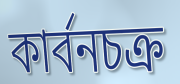
কার্বনচক্র